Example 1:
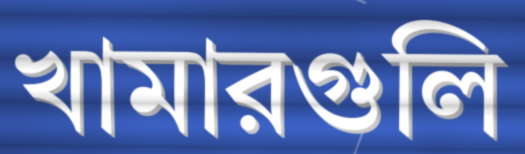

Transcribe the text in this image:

খামারগুলি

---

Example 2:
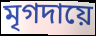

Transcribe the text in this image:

মৃগদায়ে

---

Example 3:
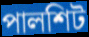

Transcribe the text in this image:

পালশিট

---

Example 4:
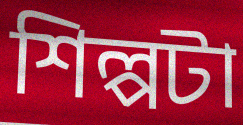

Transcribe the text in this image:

শিল্পটা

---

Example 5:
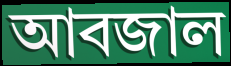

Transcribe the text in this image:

আবজাল